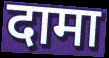
दामा